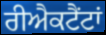
ਰੀਐਕਟੈਂਟਾਂ